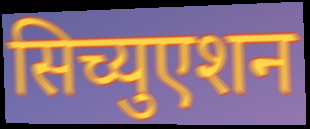
सिच्युएशन